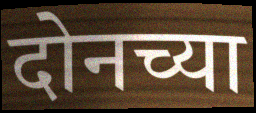
दोनच्या